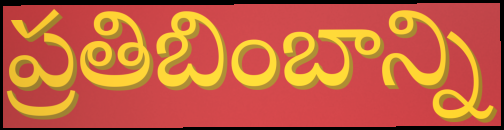
ప్రతిబింబాన్ని